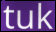
tuk